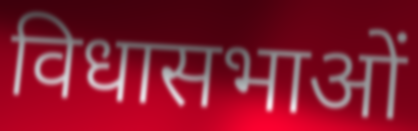
विधासभाओं